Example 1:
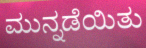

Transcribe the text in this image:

ಮುನ್ನಡೆಯಿತು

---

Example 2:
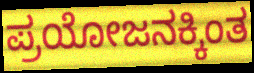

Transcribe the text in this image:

ಪ್ರಯೋಜನಕ್ಕಿಂತ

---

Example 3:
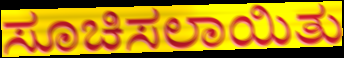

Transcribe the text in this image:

ಸೂಚಿಸಲಾಯಿತು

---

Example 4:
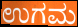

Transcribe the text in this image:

ಉಗಮ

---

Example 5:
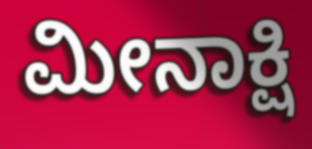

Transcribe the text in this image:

ಮೀನಾಕ್ಷಿ